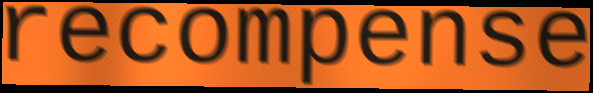
recompense